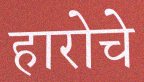
हारोचे